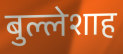
बुल्लेशाह